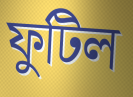
ফুটিল